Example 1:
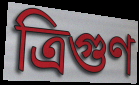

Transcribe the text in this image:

ত্রিগুণ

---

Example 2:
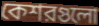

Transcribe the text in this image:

কেশরগুলো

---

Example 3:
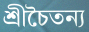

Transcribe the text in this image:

শ্রীচৈতন্য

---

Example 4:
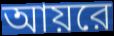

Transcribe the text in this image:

আয়রে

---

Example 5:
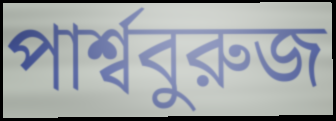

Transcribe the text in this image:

পার্শ্ববুরুজ